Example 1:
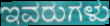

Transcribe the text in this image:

ಇವರುಗಳು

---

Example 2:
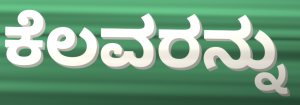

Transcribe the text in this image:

ಕೆಲವರನ್ನು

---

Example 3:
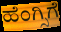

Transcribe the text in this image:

ಹೆಂಗ್ಸಿಗೆ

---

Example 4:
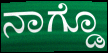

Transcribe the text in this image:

ನಾಗ್ಡೊ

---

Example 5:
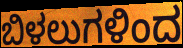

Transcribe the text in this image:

ಬಿಳಲುಗಳಿಂದ